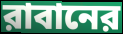
রাবানের